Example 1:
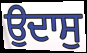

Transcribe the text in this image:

ਉਦਾਸੁ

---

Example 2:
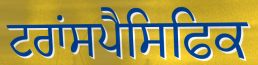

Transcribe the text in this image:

ਟਰਾਂਸਪੈਸਿਫਿਕ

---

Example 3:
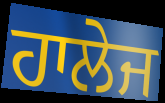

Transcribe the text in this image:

ਹਾਲੇਜ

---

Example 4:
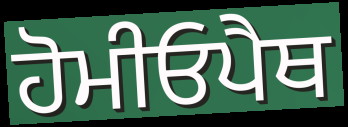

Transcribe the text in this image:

ਹੋਮੀਓਪੈਥ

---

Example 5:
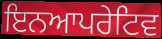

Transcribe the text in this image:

ਇਨਆਪਰੇਟਿਵ